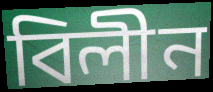
বিলীন